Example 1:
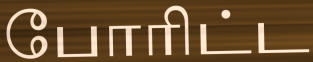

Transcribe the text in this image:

போரிட்ட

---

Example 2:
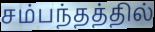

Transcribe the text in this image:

சம்பந்தத்தில்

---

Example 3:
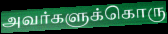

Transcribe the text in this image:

அவர்களுக்கொரு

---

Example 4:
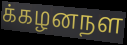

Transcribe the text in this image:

க்கழனநள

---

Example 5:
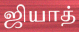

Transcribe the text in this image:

ஜியாத்